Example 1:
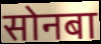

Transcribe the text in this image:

सोनबा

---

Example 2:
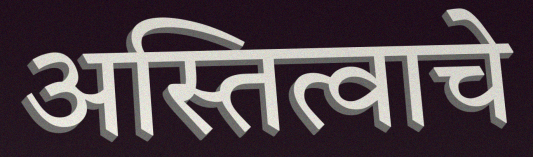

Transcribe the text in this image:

अस्तित्वाचे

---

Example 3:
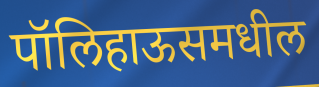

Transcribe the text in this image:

पॉलिहाऊसमधील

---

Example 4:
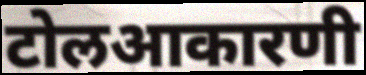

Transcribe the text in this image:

टोलआकारणी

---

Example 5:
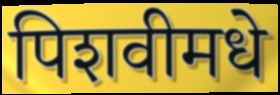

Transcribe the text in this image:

पिशवीमधे